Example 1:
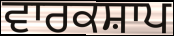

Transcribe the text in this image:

ਵਾਰਕਸ਼ਾਪ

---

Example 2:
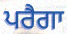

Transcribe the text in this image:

ਪਰੈਗਾ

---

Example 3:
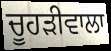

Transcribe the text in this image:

ਚੂਹੜੀਵਾਲਾ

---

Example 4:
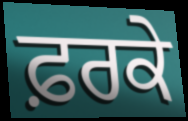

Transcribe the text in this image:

ਫ਼ਰਕੇ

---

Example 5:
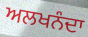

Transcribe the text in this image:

ਅਲਖਨੰਦਾ